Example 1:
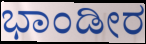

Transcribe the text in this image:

ಭಾಂಡೀರ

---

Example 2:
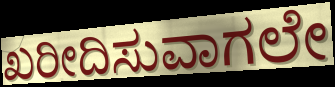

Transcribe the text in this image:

ಖರೀದಿಸುವಾಗಲೇ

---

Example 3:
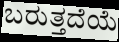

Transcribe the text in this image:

ಬರುತ್ತದೆಯೆ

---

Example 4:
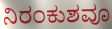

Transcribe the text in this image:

ನಿರಂಕುಶವೂ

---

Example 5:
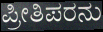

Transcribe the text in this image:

ಪ್ರೀತಿಪರನು